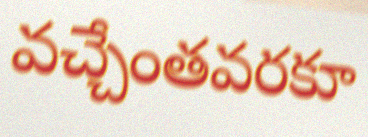
వచ్చేంతవరకూ